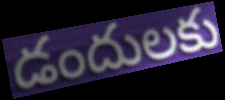
డందులకు